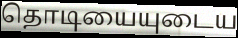
தொடியையுடைய